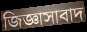
জিজ্ঞাসাবাদ